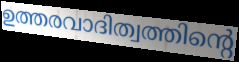
ഉത്തരവാദിത്വത്തിന്റെ